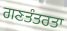
ਗਣਤੰਤਰਤਾ